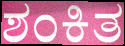
ಶಂಕಿತ